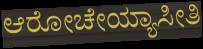
ಆರೋಚೇಯ್ಯಾಸೀತಿ